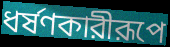
ধর্ষণকারীরূপে